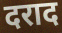
दराद